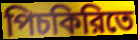
পিচকিরিতে